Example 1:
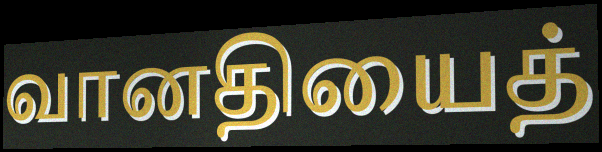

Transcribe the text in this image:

வானதியைத்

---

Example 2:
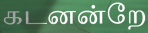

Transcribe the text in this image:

கடனன்றே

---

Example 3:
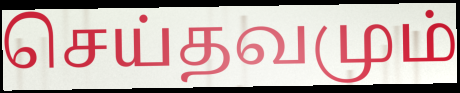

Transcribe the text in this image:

செய்தவமும்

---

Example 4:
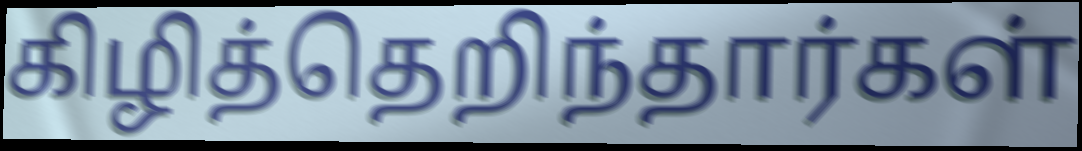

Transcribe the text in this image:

கிழித்தெறிந்தார்கள்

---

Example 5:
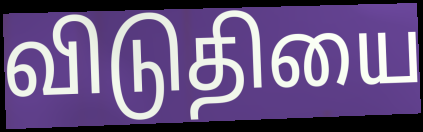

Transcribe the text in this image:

விடுதியை